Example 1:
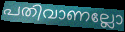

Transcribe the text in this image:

പതിവാണല്ലോ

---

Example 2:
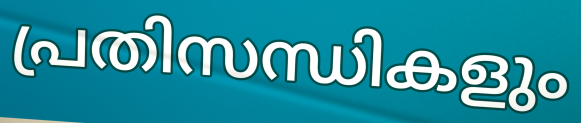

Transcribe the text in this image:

പ്രതിസന്ധികളും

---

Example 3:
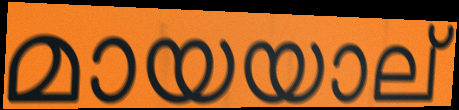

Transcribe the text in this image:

മായയാല്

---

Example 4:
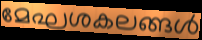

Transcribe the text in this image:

മേഘശകലങ്ങൾ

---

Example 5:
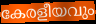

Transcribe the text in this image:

കേരളീയവും